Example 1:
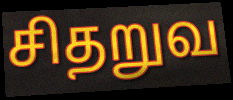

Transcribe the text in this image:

சிதறுவ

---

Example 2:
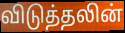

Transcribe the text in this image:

விடுத்தலின்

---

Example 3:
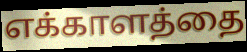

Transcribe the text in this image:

எக்காளத்தை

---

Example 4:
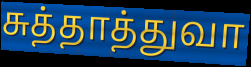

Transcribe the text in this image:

சுத்தாத்துவா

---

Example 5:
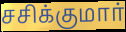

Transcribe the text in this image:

சசிக்குமார்